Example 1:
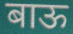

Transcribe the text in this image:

बाऊ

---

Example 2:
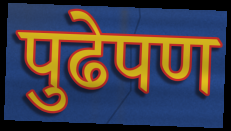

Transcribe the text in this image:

पुढेपण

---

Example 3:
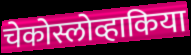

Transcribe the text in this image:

चेकोस्लोव्हाकिया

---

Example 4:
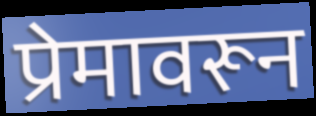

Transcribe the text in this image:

प्रेमावरून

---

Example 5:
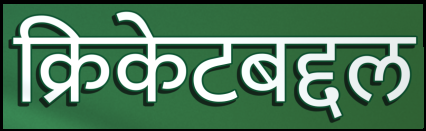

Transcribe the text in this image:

क्रिकेटबद्दल